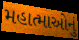
મહાત્માઓનું